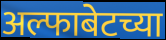
अल्फाबेटच्या